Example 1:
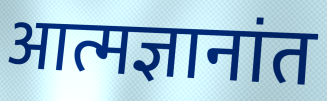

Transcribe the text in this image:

आत्मज्ञानांत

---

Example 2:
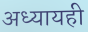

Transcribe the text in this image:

अध्यायही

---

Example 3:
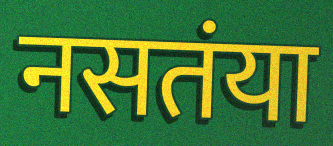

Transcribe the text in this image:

नसतंया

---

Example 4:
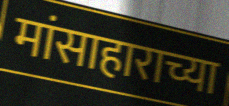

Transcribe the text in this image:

मांसाहाराच्या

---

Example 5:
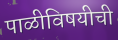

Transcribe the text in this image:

पाळीविषयीची